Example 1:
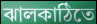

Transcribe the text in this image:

ঝালকাঠিতে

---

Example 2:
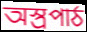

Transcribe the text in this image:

অস্ত্রপাঠ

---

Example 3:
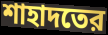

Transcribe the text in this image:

শাহাদতের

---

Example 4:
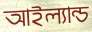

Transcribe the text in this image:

আইল্যান্ড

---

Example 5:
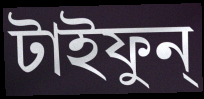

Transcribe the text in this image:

টাইফুন্